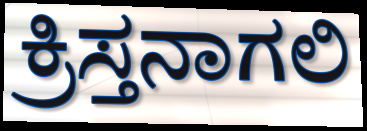
ಕ್ರಿಸ್ತನಾಗಲಿ